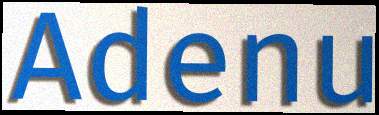
Adenu